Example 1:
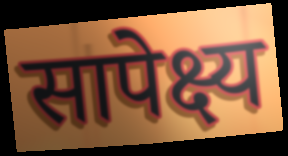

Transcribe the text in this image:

सापेक्ष्य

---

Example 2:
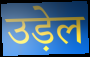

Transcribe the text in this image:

उड़ेल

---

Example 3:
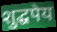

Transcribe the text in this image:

शुद्धपेय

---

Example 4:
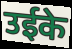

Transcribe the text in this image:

उईके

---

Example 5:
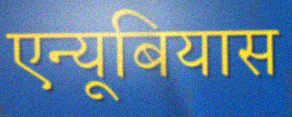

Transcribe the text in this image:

एन्यूबियास